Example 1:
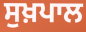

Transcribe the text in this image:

ਸੁਖ਼ਪਾਲ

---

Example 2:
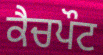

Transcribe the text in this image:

ਕੈਚਪੌਟ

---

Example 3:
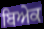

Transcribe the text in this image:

ਬਿਅੇਕ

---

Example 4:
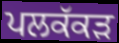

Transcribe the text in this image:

ਪਲਕੱਕੜ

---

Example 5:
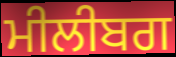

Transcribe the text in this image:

ਮੀਲੀਬਗ